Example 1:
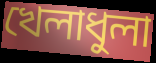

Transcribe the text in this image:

খেলাধুলা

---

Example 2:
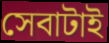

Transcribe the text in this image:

সেবাটাই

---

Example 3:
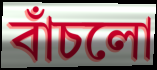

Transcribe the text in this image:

বাঁচলো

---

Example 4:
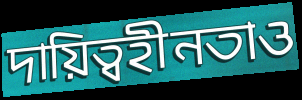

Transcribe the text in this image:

দায়িত্বহীনতাও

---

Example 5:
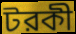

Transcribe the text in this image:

টরকী